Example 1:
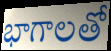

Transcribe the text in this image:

భాగాలతో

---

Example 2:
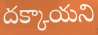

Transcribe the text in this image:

దక్కాయని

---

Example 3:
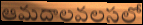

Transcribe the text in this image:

ఆమదాలవలసలో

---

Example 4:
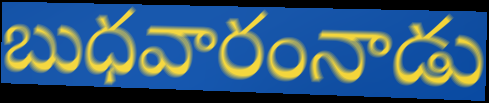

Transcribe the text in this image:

బుధవారంనాడు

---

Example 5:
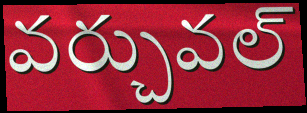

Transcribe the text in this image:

వర్చువల్